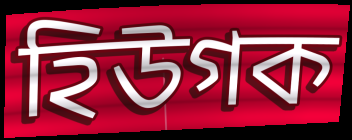
হিউগক